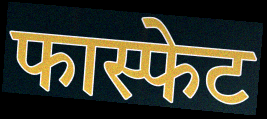
फास्फेट